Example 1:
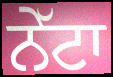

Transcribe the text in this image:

ਨੇੱਟਾ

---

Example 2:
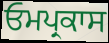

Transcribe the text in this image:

ਓਮਪ੍ਰਕਾਸ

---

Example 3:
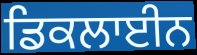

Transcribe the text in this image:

ਡਿਕਲਾਈਨ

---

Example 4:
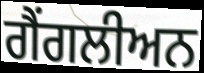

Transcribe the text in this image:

ਗੈਂਗਲੀਅਨ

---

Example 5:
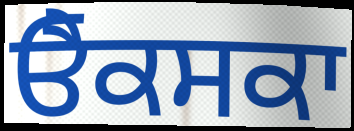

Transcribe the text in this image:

ਓੈਕਸਕਾ